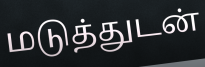
மடுத்துடன்